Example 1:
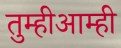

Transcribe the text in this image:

तुम्हीआम्ही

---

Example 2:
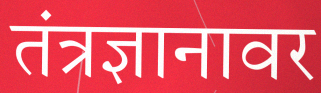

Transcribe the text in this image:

तंत्रज्ञानावर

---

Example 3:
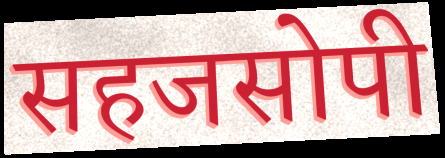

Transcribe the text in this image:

सहजसोपी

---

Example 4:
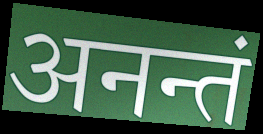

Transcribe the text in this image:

अनन्तं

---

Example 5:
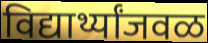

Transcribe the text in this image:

विद्यार्थ्यांजवळ